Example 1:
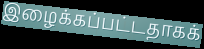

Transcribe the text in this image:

இழைக்கப்பட்டதாகக்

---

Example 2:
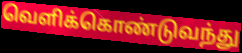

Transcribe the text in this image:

வெளிக்கொண்டுவந்து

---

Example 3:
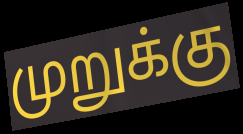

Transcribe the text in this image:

முறுக்கு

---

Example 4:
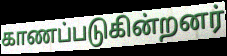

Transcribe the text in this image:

காணப்படுகின்றனர்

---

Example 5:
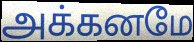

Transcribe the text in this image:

அக்கனமே